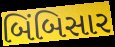
બિંબિસાર